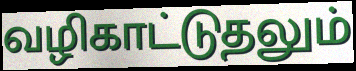
வழிகாட்டுதலும்